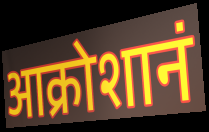
आक्रोशानं